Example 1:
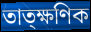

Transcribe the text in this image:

তাত্ক্ষণিক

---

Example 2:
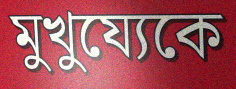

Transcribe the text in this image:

মুখুয্যেকে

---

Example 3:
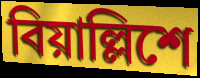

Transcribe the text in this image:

বিয়াল্লিশে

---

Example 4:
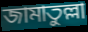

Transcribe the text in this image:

জামাতুল্লা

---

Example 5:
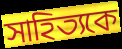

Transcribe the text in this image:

সাহিত্যকে